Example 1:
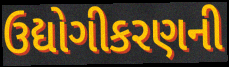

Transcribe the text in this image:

ઉદ્યોગીકરણની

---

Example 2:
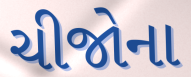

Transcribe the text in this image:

ચીજોના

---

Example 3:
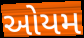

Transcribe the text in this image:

ઓયમ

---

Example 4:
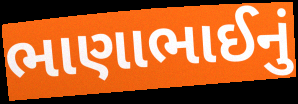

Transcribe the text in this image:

ભાણાભાઈનું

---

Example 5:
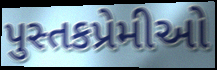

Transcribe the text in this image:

પુસ્તકપ્રેમીઓ